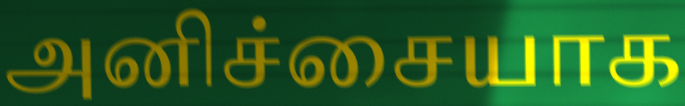
அனிச்சையாக